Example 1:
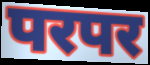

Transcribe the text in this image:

परपर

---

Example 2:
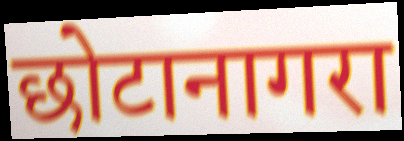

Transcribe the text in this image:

छोटानागरा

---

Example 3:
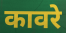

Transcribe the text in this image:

कावरे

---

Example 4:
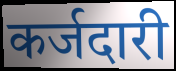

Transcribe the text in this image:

कर्जदारी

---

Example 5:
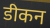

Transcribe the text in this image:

डीकन